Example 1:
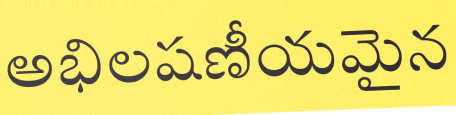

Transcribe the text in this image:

అభిలషణీయమైన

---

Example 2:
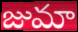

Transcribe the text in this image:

జుమా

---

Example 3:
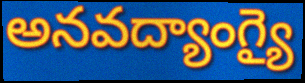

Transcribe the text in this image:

అనవద్యాంగ్యై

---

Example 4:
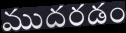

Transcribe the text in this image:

ముదరడం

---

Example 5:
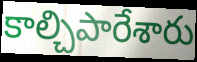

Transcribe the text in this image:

కాల్చిపారేశారు